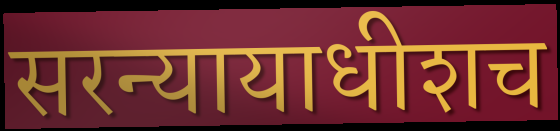
सरन्यायाधीशच